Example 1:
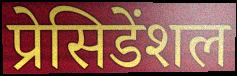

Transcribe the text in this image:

प्रेसिडेंशल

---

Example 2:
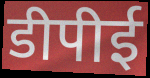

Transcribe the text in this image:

डीपीई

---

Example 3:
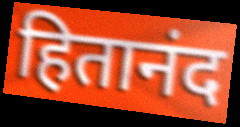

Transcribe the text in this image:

हितानंद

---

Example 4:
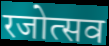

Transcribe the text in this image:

रजोत्सव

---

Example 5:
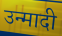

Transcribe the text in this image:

उन्मादी